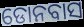
ଡୋନବାସ